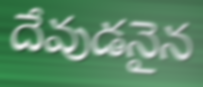
దేవుడనైన